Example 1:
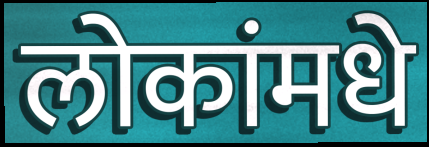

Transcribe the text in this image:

लोकांमधे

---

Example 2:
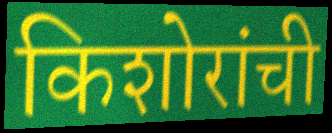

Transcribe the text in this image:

किशोरांची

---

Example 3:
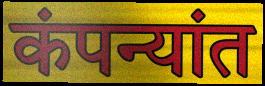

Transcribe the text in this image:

कंपन्यांत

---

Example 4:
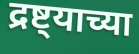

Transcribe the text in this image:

द्रष्ट्याच्या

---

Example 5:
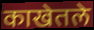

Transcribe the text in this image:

काखेतले